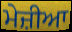
ਮੇਜ਼ੀਆ